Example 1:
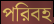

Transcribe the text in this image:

পরিবহ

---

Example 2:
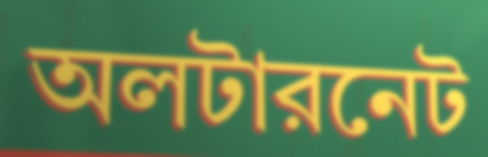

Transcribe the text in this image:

অলটারনেট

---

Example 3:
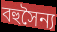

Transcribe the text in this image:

বহুসৈন্য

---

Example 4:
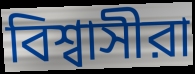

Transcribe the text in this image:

বিশ্বাসীরা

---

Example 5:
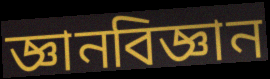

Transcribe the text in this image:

জ্ঞানবিজ্ঞান